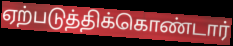
ஏற்படுத்திக்கொண்டார்